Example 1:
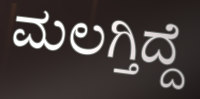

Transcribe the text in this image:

ಮಲಗ್ತಿದ್ದೆ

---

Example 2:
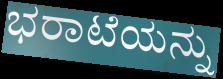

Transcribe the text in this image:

ಭರಾಟೆಯನ್ನು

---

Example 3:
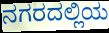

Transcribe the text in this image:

ನಗರದಲ್ಲಿಯ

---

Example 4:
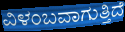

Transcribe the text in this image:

ವಿಳಂಬವಾಗುತ್ತಿದೆ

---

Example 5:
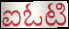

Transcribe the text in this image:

ಐಓಟಿ